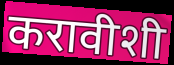
करावीशी